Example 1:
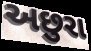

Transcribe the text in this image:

અછુરા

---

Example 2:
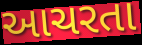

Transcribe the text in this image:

આચરતા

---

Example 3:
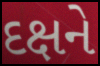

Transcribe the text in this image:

દક્ષને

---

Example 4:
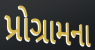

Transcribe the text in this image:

પ્રોગ્રામના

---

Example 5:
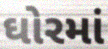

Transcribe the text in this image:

ઘોરમાં